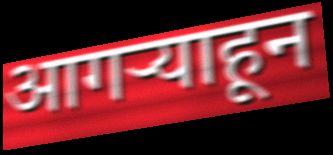
आगऱ्याहून